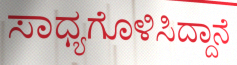
ಸಾಧ್ಯಗೊಳಿಸಿದ್ದಾನೆ